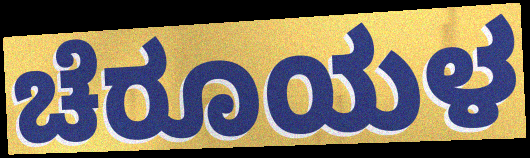
ಚೆರೂಯಳ